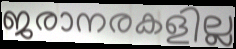
ജരാനരകളില്ല